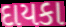
દાયકા